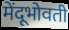
मेंदूभोवती